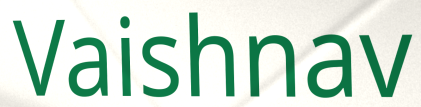
Vaishnav